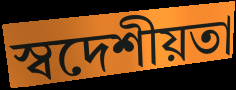
স্বদেশীয়তা